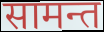
सामन्त